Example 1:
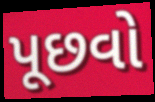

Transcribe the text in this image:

પૂછવો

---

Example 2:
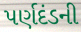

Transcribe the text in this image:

પર્ણદંડની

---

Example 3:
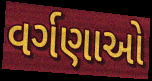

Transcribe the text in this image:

વર્ગણાઓ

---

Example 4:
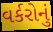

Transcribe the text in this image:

વર્કરોનું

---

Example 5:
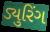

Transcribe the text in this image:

ડ્યુરિંગ